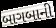
બાગબાની